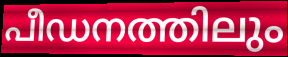
പീഡനത്തിലും